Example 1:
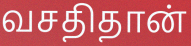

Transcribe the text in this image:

வசதிதான்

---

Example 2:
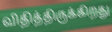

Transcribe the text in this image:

விதித்திருக்கிறது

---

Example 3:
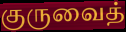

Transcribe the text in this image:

குருவைத்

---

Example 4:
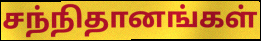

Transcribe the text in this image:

சந்நிதானங்கள்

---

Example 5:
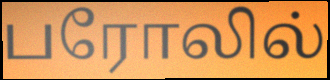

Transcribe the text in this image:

பரோலில்